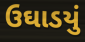
ઉઘાડયું